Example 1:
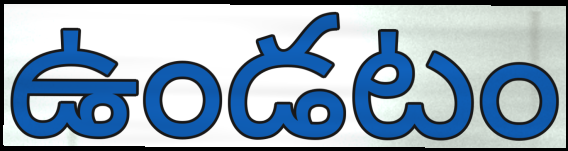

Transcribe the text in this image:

ఉండటం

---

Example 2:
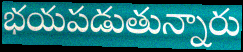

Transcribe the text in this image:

భయపడుతున్నారు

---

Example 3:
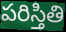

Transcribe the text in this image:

పరిస్తితి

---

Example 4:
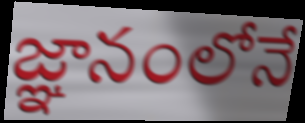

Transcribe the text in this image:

జ్ఞానంలోనే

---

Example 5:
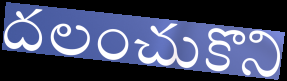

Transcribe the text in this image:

దలంచుకొని